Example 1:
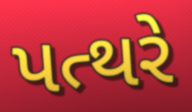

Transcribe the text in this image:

પત્થરે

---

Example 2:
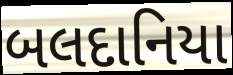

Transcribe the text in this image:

બલદાનિયા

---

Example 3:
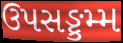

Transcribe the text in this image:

ઉપસઙ્કમ્મ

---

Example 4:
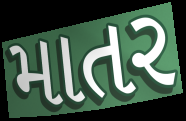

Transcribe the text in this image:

માતર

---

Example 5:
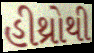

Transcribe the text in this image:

હીથ્રોથી